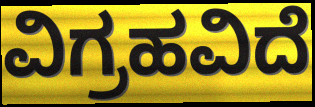
ವಿಗ್ರಹವಿದೆ